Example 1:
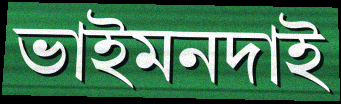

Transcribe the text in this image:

ভাইমনদাই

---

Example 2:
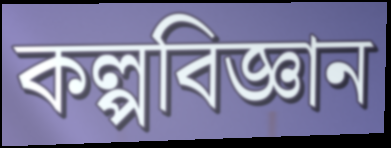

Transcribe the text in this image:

কল্পবিজ্ঞান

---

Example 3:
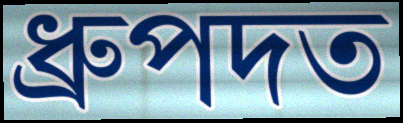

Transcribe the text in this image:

ধ্ৰুপদত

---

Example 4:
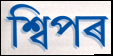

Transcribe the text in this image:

শ্বিপৰ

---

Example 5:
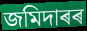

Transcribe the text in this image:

জমিদাৰৰ